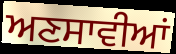
ਅਣਸਾਵੀਆਂ